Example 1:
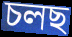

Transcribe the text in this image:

চলছ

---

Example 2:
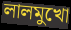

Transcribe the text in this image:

লালমুখো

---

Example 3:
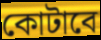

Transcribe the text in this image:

কোটাবে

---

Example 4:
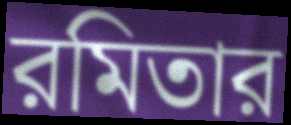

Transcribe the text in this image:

রমিতার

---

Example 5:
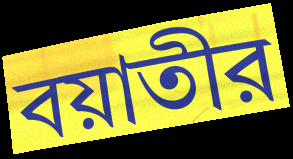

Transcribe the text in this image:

বয়াতীর